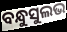
ବନ୍ଧୁସୁଲଭ